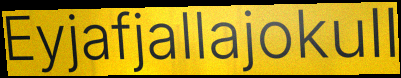
Eyjafjallajokull